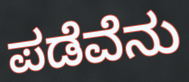
ಪಡೆವೆನು